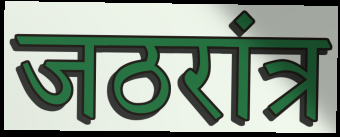
जठरांत्र